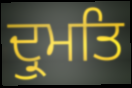
ਦ੍ਰੁਮਤਿ